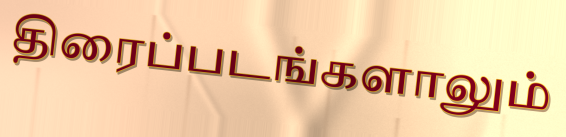
திரைப்படங்களாலும்